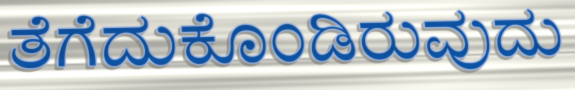
ತೆಗೆದುಕೊಂಡಿರುವುದು